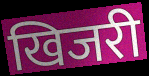
खिजरी